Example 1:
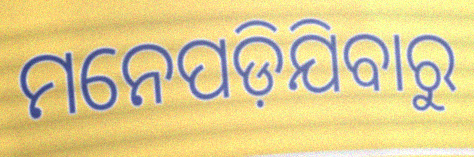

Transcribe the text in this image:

ମନେପଡ଼ିଯିବାରୁ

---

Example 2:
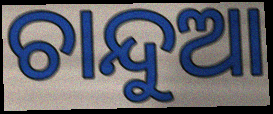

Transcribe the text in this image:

ଚାନ୍ଦୁଆ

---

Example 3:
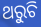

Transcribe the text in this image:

ଥରୁଚି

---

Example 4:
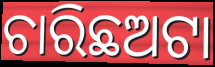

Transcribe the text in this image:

ଚାରିଛଅଟା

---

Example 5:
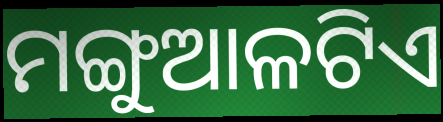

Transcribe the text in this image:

ମଙ୍ଗୁଆଳଟିଏ